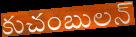
కుచంబులన్